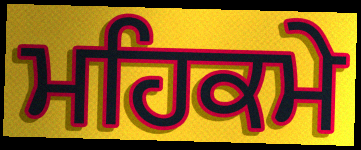
ਮਹਿਕਮੇ